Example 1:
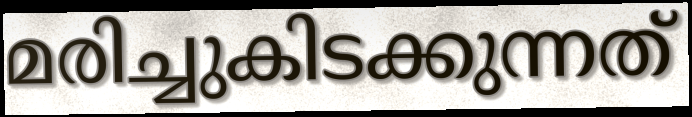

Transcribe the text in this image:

മരിച്ചുകിടക്കുന്നത്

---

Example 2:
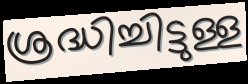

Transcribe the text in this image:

ശ്രദ്ധിച്ചിട്ടുള്ള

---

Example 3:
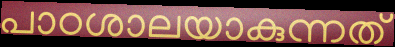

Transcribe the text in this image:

പാഠശാലയാകുന്നത്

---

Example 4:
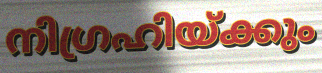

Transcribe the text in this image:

നിഗ്രഹിയ്ക്കും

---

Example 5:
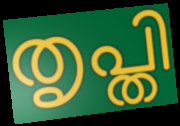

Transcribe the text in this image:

തൃപ്തി